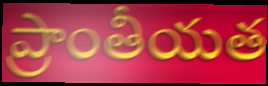
ప్రాంతీయత